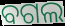
ବଗଲ